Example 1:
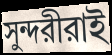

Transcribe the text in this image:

সুন্দরীরাই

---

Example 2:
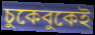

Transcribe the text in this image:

চুকেবুকেই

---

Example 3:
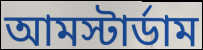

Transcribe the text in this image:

আমস্টার্ডাম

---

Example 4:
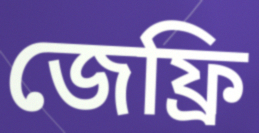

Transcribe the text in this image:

জেফ্রি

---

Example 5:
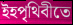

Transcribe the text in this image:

ইহপৃথিবীতে